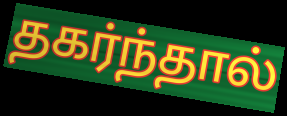
தகர்ந்தால்